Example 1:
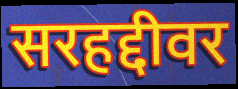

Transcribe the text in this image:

सरहद्दीवर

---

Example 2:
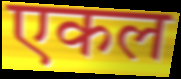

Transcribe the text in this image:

एकल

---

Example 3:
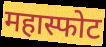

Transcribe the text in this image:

महास्फोट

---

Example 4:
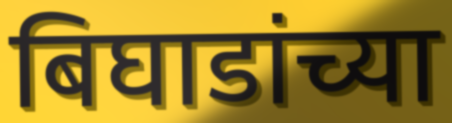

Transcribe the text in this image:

बिघाडांच्या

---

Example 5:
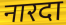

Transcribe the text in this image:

नारदा